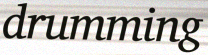
drumming